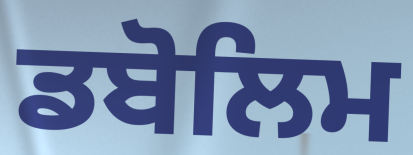
ਡਬੋਲਿਮ